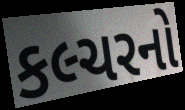
કલ્ચરનો